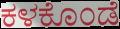
ಕಳಕೊಂಡೆ